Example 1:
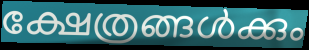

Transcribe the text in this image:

ക്ഷേത്രങ്ങൾക്കും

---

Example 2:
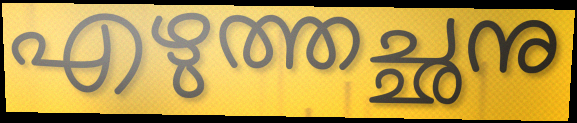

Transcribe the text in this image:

എഴുത്തച്ഛനു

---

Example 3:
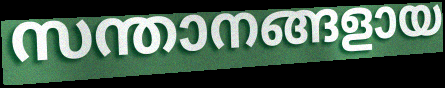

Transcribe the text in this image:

സന്താനങ്ങളായ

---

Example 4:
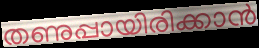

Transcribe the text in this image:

തണുപ്പായിരിക്കാൻ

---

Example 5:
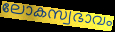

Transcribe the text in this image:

ലോകസ്വഭാവം